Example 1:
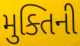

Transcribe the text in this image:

મુક્તિની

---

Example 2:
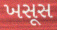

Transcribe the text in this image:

ખસૂસ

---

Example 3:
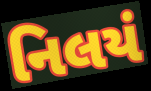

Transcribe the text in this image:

નિલયં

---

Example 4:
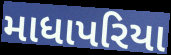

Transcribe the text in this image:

માધાપરિયા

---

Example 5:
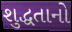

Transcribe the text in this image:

શુદ્ધતાનો